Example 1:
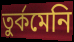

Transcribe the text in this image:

তুর্কমেনি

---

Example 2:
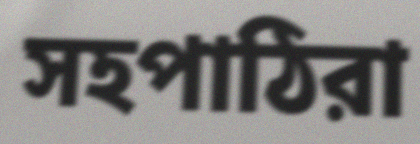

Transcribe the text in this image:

সহপাঠিরা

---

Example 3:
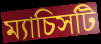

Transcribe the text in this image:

ম্যাচিসটি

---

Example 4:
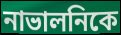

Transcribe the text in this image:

নাভালনিকে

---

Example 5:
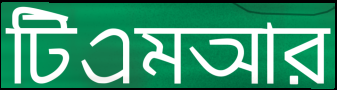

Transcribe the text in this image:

টিএমআর